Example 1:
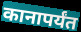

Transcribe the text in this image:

कानापर्यंत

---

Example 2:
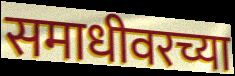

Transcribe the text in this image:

समाधीवरच्या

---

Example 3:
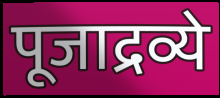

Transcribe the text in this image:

पूजाद्रव्ये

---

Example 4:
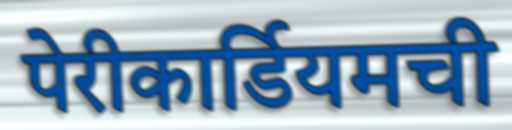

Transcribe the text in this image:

पेरीकार्डियमची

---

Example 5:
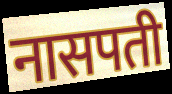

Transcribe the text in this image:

नासपती